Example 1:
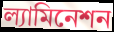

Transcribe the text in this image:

ল্যামিনেশন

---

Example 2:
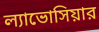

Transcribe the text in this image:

ল্যাভোসিয়ার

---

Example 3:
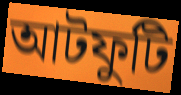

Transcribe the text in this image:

আটফুটি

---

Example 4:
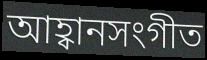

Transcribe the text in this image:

আহ্বানসংগীত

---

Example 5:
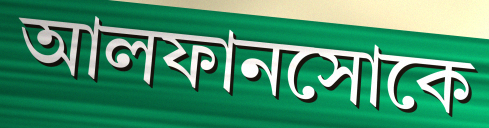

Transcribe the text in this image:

আলফানসোকে